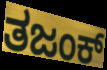
ತಜಂಕ್